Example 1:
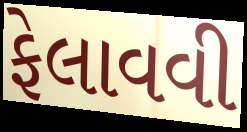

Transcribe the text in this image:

ફેલાવવી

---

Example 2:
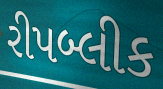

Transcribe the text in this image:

રીપબ્લીક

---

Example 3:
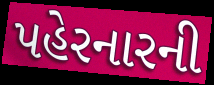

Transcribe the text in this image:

પહેરનારની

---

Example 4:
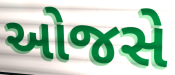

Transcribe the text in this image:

ઓજસે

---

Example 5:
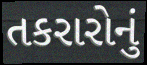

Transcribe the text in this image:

તકરારોનું